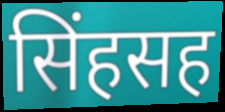
सिंहसह